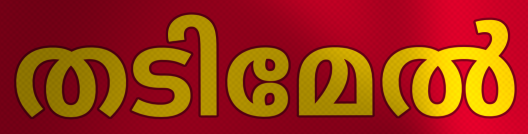
തടിമേൽ